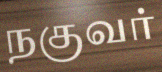
நகுவர்